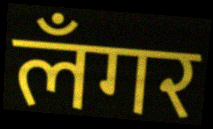
लँगर